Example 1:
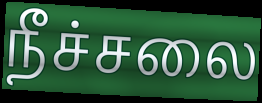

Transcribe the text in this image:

நீச்சலை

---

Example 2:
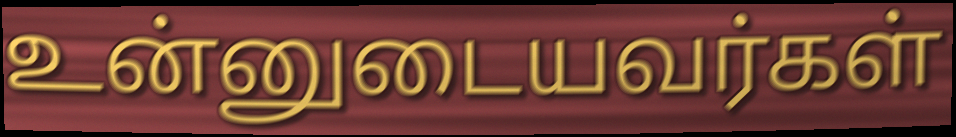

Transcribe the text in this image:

உன்னுடையவர்கள்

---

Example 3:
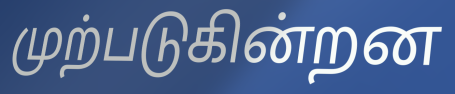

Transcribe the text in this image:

முற்படுகின்றன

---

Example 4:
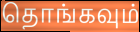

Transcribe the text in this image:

தொங்கவும்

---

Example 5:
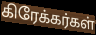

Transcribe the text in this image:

கிரேக்கர்கள்